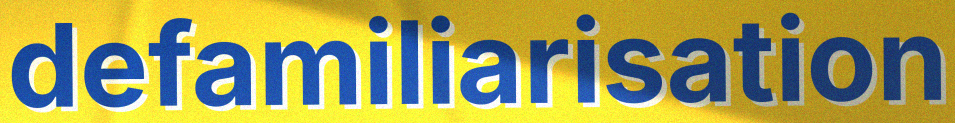
defamiliarisation